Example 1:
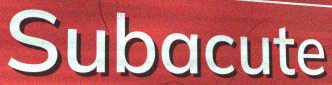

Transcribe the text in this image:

Subacute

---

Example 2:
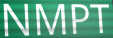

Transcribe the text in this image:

NMPT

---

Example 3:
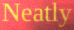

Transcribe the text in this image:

Neatly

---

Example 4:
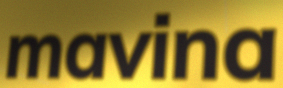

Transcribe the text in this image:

mavina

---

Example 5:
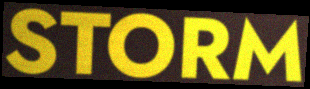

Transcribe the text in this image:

STORM